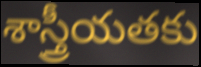
శాస్త్రీయతకు